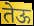
तेऊ